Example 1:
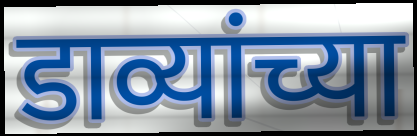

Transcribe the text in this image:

डाव्यांच्या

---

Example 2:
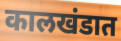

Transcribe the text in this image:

कालखंडात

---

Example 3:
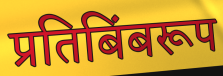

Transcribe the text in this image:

प्रतिबिंबरूप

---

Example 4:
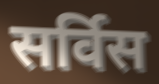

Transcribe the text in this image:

सर्विस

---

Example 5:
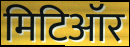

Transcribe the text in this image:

मिटिऑर